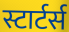
स्टार्टर्स